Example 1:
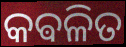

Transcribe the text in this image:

କଵଳିତ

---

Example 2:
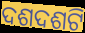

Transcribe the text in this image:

ଦଶଦଶଟି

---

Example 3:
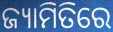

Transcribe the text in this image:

ଜ୍ୟାମିତିରେ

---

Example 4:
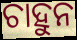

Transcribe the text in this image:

ଚାହୁନ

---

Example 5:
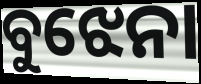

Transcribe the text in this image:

ବୁଝେନା